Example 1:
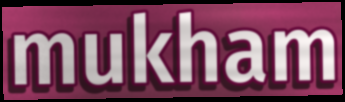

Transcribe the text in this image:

mukham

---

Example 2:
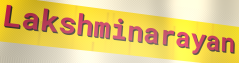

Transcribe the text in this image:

Lakshminarayan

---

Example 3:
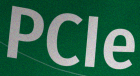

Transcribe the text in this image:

PCIe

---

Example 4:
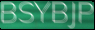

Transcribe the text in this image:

BSYBJP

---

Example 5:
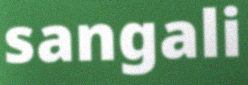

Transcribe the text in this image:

sangali